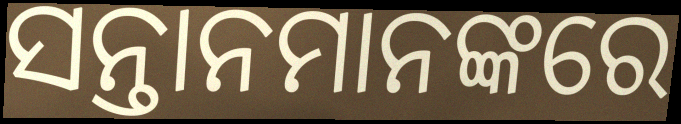
ସନ୍ତାନମାନଙ୍କରେ